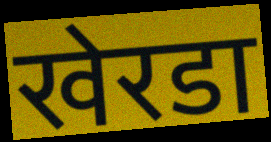
खेरडा